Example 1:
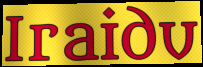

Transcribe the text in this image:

Iraidu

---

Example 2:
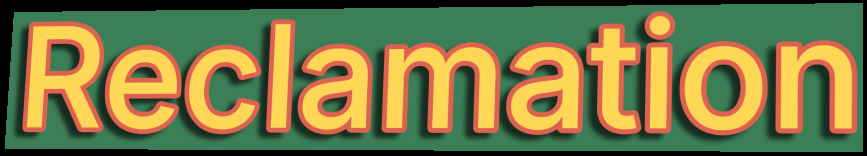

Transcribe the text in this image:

Reclamation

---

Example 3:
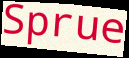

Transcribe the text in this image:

Sprue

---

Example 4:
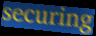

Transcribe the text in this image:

securing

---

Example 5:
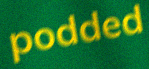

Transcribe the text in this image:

podded